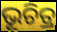
ଭୂଚିତ୍ର